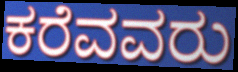
ಕರೆವವರು